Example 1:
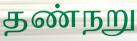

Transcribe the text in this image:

தண்நறு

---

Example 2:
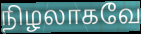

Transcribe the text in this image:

நிழலாகவே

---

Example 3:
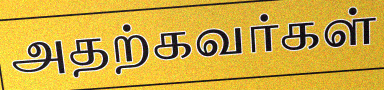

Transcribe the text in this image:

அதற்கவர்கள்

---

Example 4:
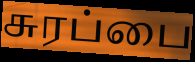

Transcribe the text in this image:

சுரப்பை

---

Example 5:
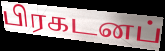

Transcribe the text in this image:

பிரகடனப்